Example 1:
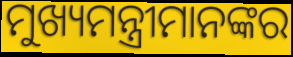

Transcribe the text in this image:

ମୁଖ୍ୟମନ୍ତ୍ରୀମାନଙ୍କର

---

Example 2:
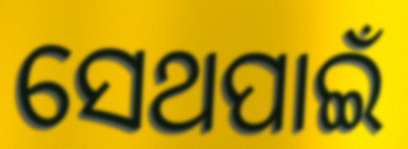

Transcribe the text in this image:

ସେଥପାଇଁ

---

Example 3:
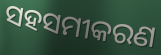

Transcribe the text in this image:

ସହସମୀକରଣ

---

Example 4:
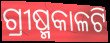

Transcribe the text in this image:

ଗ୍ରୀଷ୍ମକାଳଟି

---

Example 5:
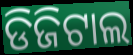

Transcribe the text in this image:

ଡିଜିଟାଲ